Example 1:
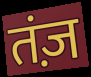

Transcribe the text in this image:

तंज़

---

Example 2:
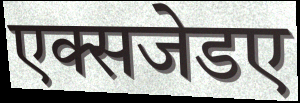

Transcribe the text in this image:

एक्सजेडए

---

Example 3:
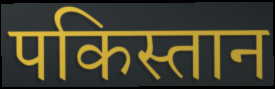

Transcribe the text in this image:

पकिस्तान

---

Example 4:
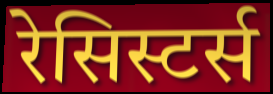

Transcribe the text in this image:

रेसिस्टर्स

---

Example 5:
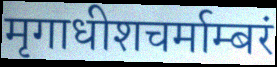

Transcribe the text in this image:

मृगाधीशचर्माम्बरं